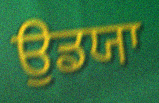
ਉਡਯਾ